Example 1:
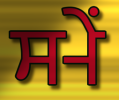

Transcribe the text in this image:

ਸ੍ਮੇਂ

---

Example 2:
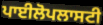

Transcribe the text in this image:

ਪਾਈਲੋਪਲਾਸਟੀ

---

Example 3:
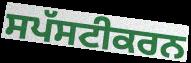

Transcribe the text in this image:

ਸਪੱਸਟੀਕਰਨ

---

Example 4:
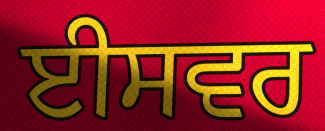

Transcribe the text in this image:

ਈਸਵਰ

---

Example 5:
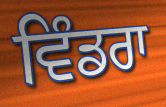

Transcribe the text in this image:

ਵਿੰਡਰਾ